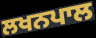
ਲਖਨਪਾਲ